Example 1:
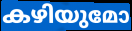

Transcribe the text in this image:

കഴിയുമോ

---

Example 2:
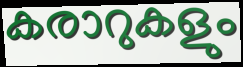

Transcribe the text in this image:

കരാറുകളും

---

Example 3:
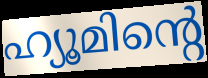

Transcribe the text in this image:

ഹ്യൂമിന്റെ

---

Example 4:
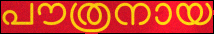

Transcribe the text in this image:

പൗത്രനായ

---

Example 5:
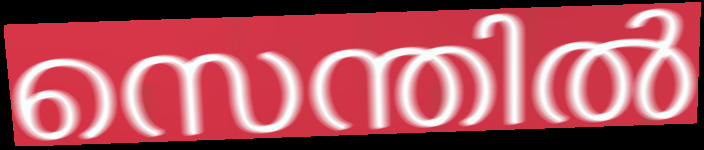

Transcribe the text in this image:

സെന്തിൽ